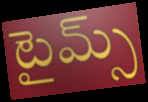
టైమ్స్